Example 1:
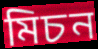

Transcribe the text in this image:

মিচন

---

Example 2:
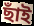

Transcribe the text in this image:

ছাঁই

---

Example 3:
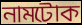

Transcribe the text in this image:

নামটোক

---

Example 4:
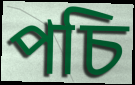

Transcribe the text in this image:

পচি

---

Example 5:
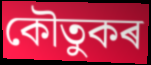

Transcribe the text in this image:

কৌতুকৰ